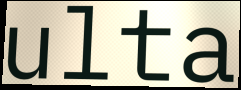
ulta